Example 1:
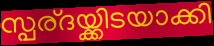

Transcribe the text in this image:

സ്പര്ദയ്ക്കിടയാക്കി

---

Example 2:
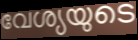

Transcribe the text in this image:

വേശ്യയുടെ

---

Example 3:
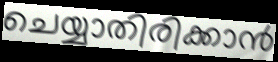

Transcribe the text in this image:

ചെയ്യാതിരിക്കാൻ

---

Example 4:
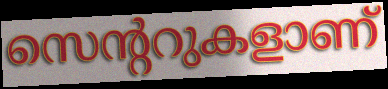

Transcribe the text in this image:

സെന്ററുകളാണ്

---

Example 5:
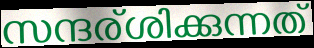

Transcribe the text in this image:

സന്ദര്ശിക്കുന്നത്